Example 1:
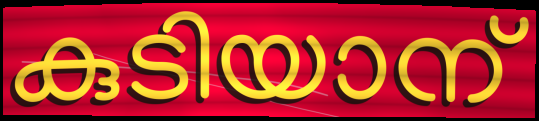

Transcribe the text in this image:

കുടിയാന്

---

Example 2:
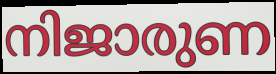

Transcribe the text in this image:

നിജാരുണ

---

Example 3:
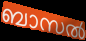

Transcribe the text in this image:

ബാസൽ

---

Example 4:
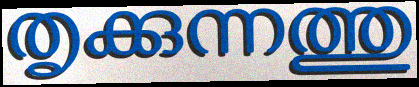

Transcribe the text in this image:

തൃക്കുന്നത്തു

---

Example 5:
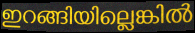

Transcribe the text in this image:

ഇറങ്ങിയില്ലെങ്കിൽ